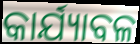
କାର୍ଯ୍ୟାବଳ